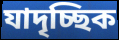
যাদৃচ্ছিক